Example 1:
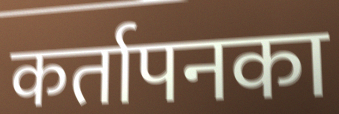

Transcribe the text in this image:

कर्तापनका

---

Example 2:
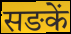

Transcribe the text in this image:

सङकें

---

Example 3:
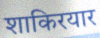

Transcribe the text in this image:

शाकिरयार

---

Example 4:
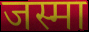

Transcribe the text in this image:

जस्मा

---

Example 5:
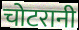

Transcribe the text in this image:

चोटरानी